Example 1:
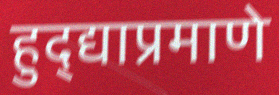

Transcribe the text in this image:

हुद्द्याप्रमाणे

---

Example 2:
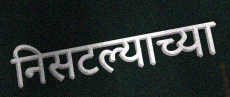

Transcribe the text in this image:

निसटल्याच्या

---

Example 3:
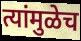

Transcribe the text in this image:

त्यांमुळेच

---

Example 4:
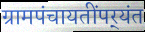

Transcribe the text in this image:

ग्रामपंचायतींपर्यंत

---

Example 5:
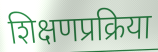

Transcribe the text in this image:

शिक्षणप्रक्रिया